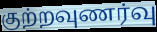
குற்றவுணர்வு